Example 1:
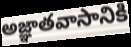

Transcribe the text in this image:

అజ్ఞాతవాసానికి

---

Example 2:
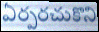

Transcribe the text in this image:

ఏర్పరచుకొని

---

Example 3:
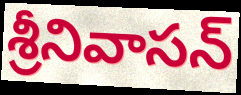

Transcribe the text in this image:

శ్రీనివాసన్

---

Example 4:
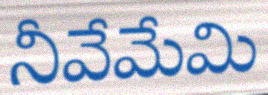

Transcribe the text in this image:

నీవేమేమి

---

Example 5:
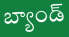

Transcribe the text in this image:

బ్యాండ్